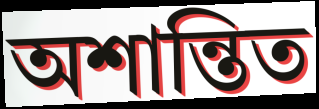
অশান্তিত